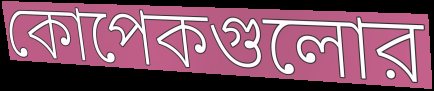
কোপেকগুলোর